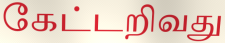
கேட்டறிவது